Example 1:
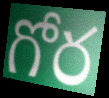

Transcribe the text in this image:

గోర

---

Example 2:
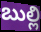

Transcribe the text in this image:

బుల్లి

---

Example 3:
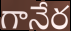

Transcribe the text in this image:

గానేర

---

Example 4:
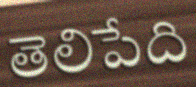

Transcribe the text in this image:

తెలిపేది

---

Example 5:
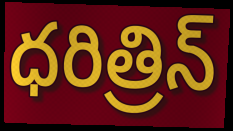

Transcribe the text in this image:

ధరిత్రిన్